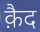
क़ैद